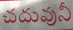
చదువునీ